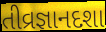
તીવ્રજ્ઞાનદશા